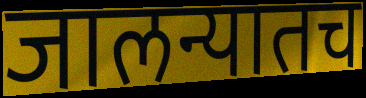
जालन्यातच